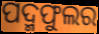
ପଦ୍ମଫୁଲର